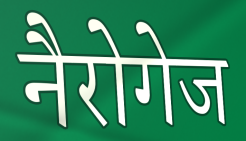
नैरोगेज